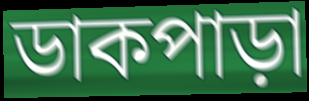
ডাকপাড়া